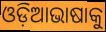
ଓଡ଼ିଆଭାଷାକୁ